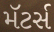
મૅટર્સ